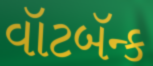
વૉટબૅન્ક